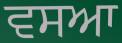
ਵਸਆ